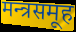
मन्त्रसमूह